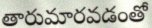
తారుమారవడంతో